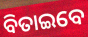
ବିତାଇବେ